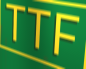
TTF